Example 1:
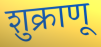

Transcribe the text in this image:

शुक्राणू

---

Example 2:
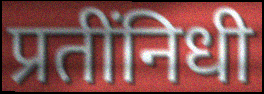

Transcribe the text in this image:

प्रतींनिधी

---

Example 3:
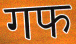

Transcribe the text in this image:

गफ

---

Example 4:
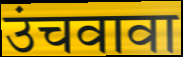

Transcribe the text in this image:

उंचवावा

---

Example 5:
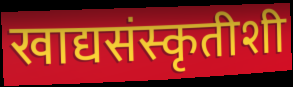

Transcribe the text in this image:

खाद्यसंस्कृतीशी